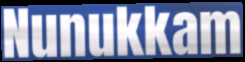
Nunukkam